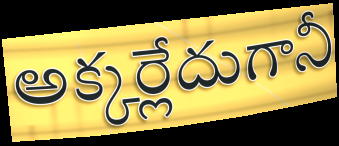
అక్కర్లేదుగానీ